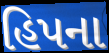
હિપના